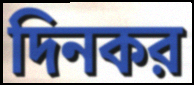
দিনকর